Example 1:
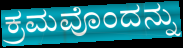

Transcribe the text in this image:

ಕ್ರಮವೊಂದನ್ನು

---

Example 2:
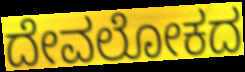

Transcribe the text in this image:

ದೇವಲೋಕದ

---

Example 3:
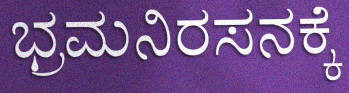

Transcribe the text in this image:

ಭ್ರಮನಿರಸನಕ್ಕೆ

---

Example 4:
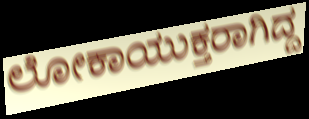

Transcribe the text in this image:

ಲೋಕಾಯುಕ್ತರಾಗಿದ್ದ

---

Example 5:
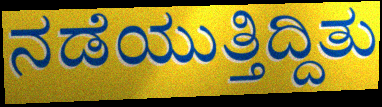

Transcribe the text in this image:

ನಡೆಯುತ್ತಿದ್ದಿತು